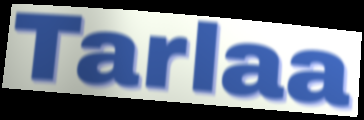
Tarlaa